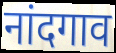
नांदगाव